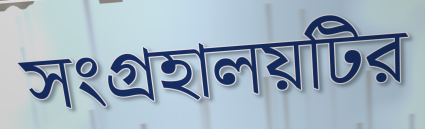
সংগ্রহালয়টির